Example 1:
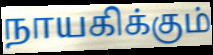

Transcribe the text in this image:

நாயகிக்கும்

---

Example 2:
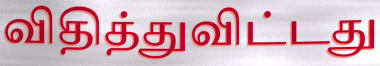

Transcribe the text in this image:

விதித்துவிட்டது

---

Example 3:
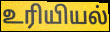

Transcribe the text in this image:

உரியியல்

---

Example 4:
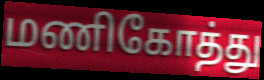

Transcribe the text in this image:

மணிகோத்து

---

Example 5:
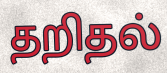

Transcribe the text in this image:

தறிதல்